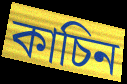
কাচিন